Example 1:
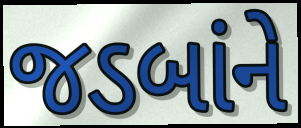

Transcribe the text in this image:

જડબાંને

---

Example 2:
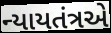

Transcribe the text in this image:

ન્યાયતંત્રએ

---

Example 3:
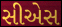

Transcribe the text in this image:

સીએસ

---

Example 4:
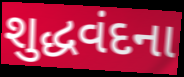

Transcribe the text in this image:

શુદ્ધવંદના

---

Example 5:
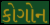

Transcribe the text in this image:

કોગોન